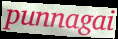
punnagai